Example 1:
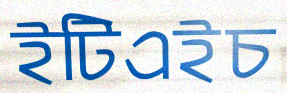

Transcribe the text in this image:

ইটিএইচ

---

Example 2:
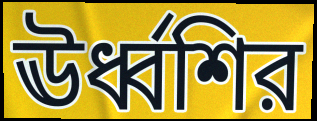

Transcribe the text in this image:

ঊর্ধ্বশির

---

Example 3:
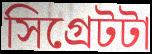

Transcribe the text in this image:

সিগ্রেটটা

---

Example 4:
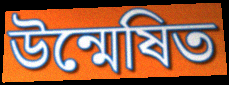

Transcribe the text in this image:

উন্মেষিত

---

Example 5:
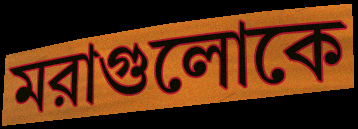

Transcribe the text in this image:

মরাগুলোকে